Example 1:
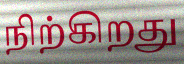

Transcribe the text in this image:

நிற்கிறது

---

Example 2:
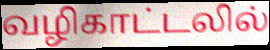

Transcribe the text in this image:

வழிகாட்டலில்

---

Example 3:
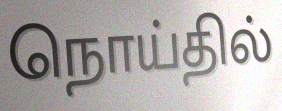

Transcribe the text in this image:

நொய்தில்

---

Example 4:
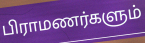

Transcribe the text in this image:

பிராமணர்களும்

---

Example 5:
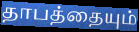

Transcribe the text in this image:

தாபத்தையும்